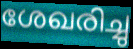
ശേഖരിച്ചു